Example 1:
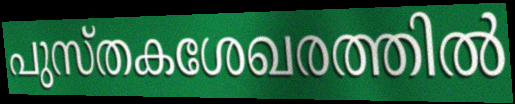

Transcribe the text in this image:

പുസ്തകശേഖരത്തിൽ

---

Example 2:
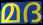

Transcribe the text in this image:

മദ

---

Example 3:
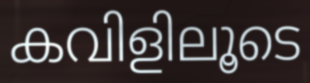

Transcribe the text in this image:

കവിളിലൂടെ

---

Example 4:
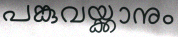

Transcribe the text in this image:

പങ്കുവയ്ക്കാനും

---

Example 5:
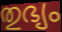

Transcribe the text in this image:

തുഭ്യം